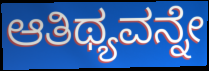
ಆತಿಥ್ಯವನ್ನೇ